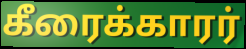
கீரைக்காரர்